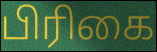
பிரிகை